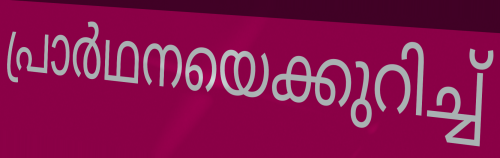
പ്രാർഥനയെക്കുറിച്ച്